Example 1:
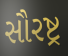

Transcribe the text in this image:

સૌરષ્ટ્ર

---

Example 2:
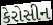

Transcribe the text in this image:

કેરોસીન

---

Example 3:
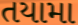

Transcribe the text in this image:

તયામા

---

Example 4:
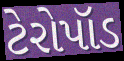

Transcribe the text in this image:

ટેરોપૉડ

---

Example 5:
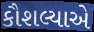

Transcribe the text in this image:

કૌશલ્યાએ